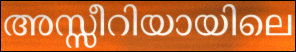
അസ്സീറിയായിലെ